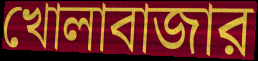
খোলাবাজার